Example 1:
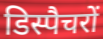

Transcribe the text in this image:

डिस्पैचरों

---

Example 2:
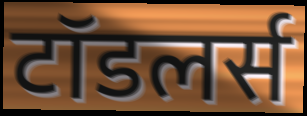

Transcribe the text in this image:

टॉडलर्स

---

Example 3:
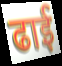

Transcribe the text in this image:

ढाई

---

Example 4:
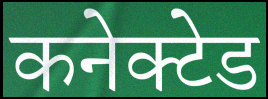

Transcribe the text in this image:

कनेक्टेड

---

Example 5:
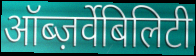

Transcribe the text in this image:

ऑब्ज़र्वेबिलिटी